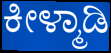
ಕೀಳ್ಮಾಡಿ